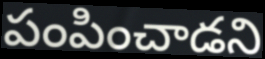
పంపించాడని